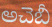
అచెబీ